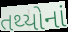
તથ્યોનાં